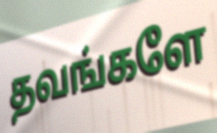
தவங்களே